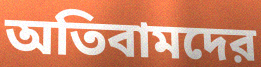
অতিবামদের